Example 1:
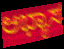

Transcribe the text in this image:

ಆಭ್ಯಾಸ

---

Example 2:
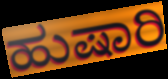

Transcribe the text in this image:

ಹುಷಾರಿ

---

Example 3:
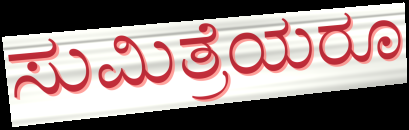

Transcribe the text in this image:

ಸುಮಿತ್ರೆಯರೂ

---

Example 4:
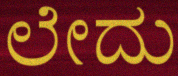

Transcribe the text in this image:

ಲೇದು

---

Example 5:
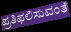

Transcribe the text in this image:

ಪ್ರತಿಫಲಿಸುವಂತೆ